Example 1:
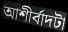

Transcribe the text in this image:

আশীর্বাদটা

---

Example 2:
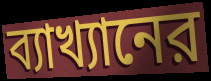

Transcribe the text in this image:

ব্যাখ্যানের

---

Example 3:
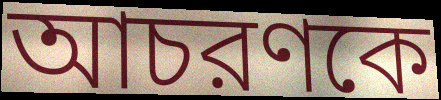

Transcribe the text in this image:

আচরণকে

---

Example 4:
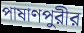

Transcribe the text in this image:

পাষাণপুরীর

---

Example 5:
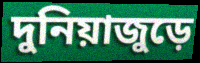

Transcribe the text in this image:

দুনিয়াজুড়ে